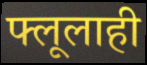
फ्लूलाही